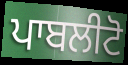
ਪਾਬਲੀਟੋ